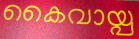
കൈവായ്പ